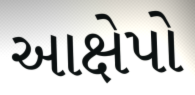
આક્ષેપો